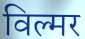
विल्मर